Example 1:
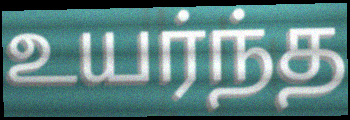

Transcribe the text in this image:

உயர்ந்த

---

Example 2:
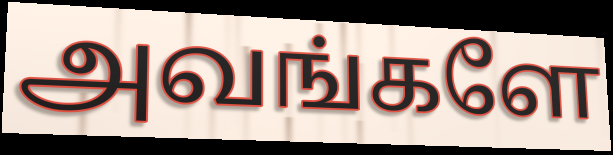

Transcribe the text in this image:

அவங்களே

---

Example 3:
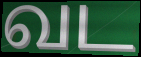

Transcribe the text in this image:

வட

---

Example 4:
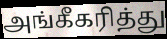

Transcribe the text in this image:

அங்கீகரித்து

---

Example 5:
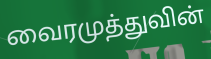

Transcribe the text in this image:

வைரமுத்துவின்